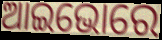
ଆଇଭୋରେ